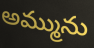
అమ్మును